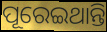
ପୂରେଇଥାନ୍ତି